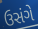
ઉસંગે